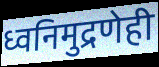
ध्वनिमुद्रणेही